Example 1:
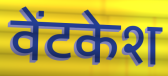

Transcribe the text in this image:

वेंटकेश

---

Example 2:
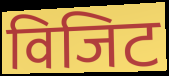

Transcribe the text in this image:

विजिट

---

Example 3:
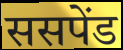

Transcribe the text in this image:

ससपेंड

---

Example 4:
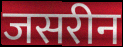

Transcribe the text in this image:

जसरीन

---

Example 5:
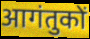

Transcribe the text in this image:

आगंतुकों